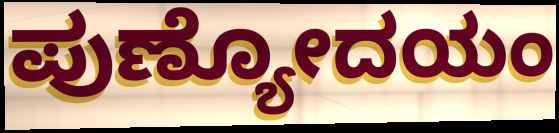
ಪುಣ್ಯೋದಯಂ